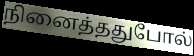
நினைத்ததுபோல்